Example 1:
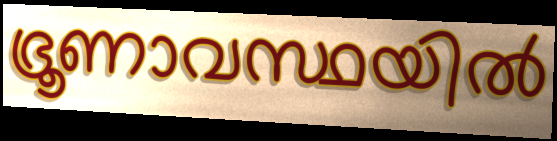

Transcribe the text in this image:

ഭ്രൂണാവസ്ഥയിൽ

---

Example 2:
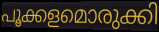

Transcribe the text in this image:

പൂക്കളമൊരുക്കി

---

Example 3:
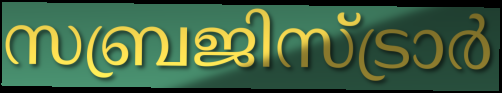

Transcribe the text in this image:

സബ്രജിസ്ട്രാർ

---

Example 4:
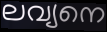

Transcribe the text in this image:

ലവ്യനെ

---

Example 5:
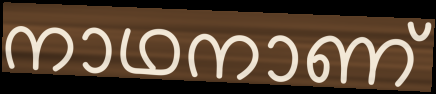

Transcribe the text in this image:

നാഥനാണ്